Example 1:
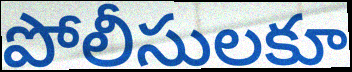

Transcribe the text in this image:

పోలీసులకూ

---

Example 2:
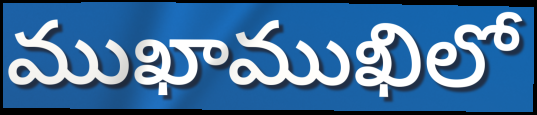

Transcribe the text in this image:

ముఖాముఖిలో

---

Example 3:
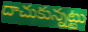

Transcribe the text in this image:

దాచుకున్నట్టు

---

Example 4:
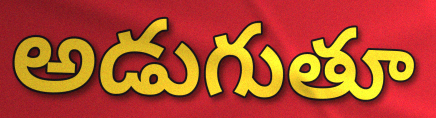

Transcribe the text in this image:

అడుగుతూ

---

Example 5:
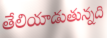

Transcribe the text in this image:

తేలియాడుతున్నది